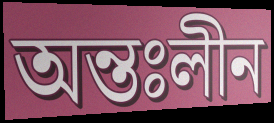
অন্তঃলীন